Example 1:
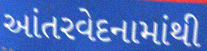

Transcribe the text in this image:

આંતરવેદનામાંથી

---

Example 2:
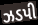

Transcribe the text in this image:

ઝડપી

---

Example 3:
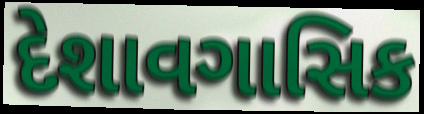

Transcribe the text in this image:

દેશાવગાસિક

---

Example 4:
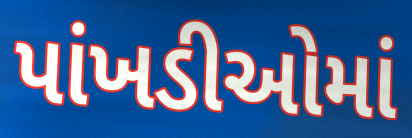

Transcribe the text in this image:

પાંખડીઓમાં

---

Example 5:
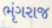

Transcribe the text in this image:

ભૃંગરાજ